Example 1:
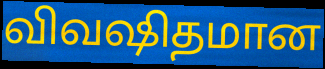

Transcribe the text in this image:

விவஷிதமான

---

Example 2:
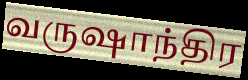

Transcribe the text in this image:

வருஷாந்திர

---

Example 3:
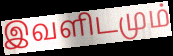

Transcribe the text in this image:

இவளிடமும்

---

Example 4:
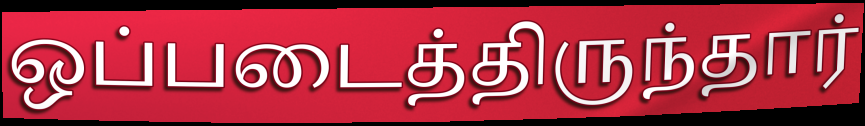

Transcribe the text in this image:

ஒப்படைத்திருந்தார்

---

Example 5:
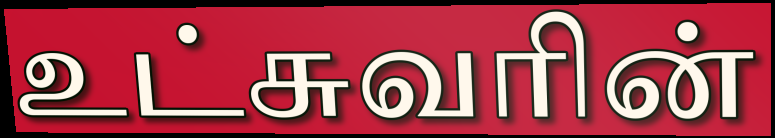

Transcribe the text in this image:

உட்சுவரின்